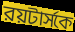
রয়টার্সকে